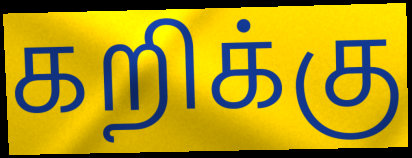
கறிக்கு